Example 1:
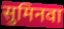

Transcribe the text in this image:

सुमिनवा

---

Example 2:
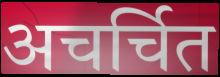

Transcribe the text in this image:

अचर्चित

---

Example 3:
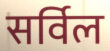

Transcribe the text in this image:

सर्विल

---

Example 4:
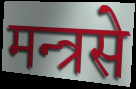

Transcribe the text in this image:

मन्त्रसे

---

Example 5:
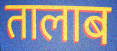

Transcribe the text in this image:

तालाब